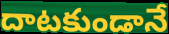
దాటకుండానే